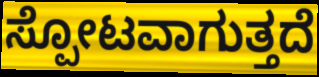
ಸ್ಪೋಟವಾಗುತ್ತದೆ